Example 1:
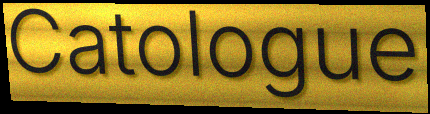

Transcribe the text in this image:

Catologue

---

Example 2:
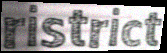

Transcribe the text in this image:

ristrict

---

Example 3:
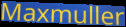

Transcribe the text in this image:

Maxmuller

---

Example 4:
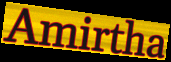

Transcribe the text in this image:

Amirtha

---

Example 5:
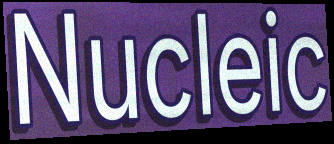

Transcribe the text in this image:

Nucleic